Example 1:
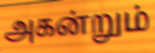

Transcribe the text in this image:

அகன்றும்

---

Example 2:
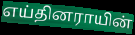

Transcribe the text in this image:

எய்தினராயின்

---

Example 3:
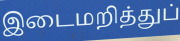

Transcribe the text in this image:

இடைமறித்துப்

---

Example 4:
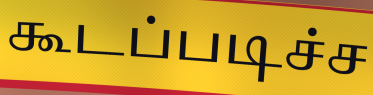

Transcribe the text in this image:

கூடப்படிச்ச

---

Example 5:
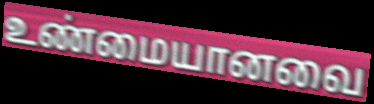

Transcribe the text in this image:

உண்மையானவை